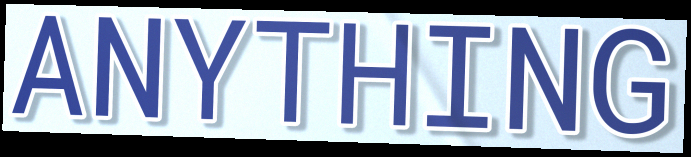
ANYTHING